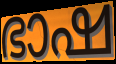
ഭാഷ